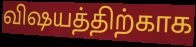
விஷயத்திற்காக